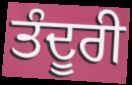
ਤੰਦੂਰੀ